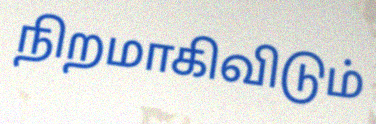
நிறமாகிவிடும்